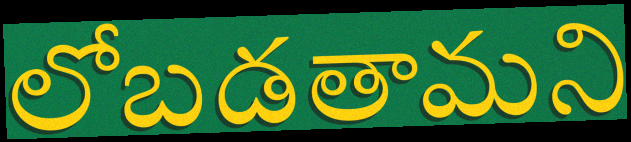
లోబడతామని